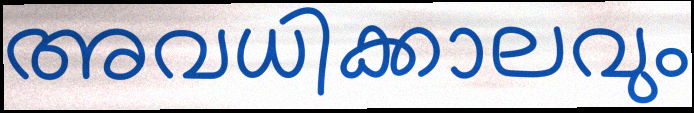
അവധിക്കാലവും